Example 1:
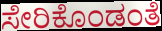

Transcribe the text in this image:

ಸೇರಿಕೊಂಡಂತೆ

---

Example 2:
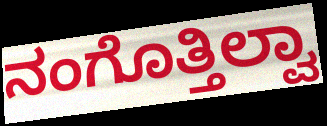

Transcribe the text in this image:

ನಂಗೊತ್ತಿಲ್ವಾ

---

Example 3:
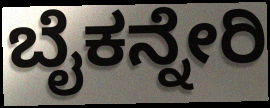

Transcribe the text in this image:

ಬೈಕನ್ನೇರಿ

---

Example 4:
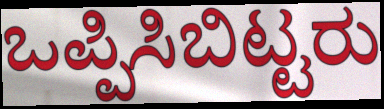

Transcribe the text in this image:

ಒಪ್ಪಿಸಿಬಿಟ್ಟರು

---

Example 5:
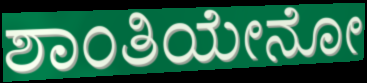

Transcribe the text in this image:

ಶಾಂತಿಯೇನೋ